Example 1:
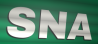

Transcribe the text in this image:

SNA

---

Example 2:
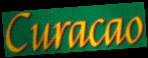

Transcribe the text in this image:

Curacao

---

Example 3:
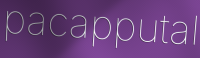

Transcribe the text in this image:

pacapputal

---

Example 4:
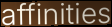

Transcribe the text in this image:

affinities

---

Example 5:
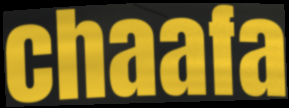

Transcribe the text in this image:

chaafa